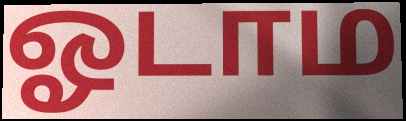
ஓடாம